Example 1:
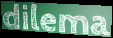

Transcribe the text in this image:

dilema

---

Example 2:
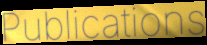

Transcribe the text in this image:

Publications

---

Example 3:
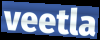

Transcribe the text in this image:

veetla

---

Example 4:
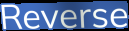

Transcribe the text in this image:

Reverse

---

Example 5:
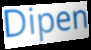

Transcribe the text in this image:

Dipen